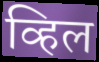
व्हिल